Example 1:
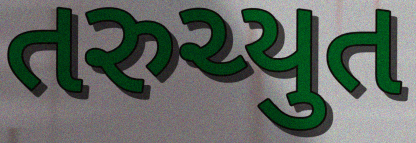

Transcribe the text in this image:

તરુચ્યુત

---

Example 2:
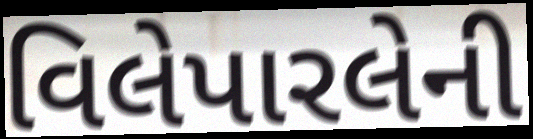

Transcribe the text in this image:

વિલેપારલેની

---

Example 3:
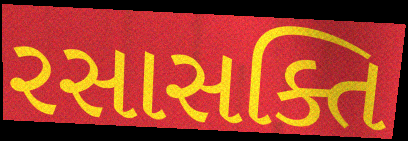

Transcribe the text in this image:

રસાસક્તિ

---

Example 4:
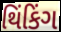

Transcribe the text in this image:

થિંકિંગ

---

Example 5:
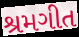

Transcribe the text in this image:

શ્રમગીત